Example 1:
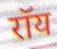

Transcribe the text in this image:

रॉय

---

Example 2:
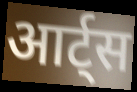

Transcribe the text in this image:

आर्ट्स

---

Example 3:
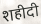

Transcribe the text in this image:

शहीदी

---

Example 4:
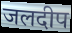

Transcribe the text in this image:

जलदीप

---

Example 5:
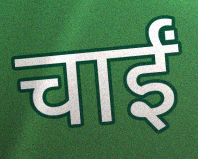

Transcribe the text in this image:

चाईं